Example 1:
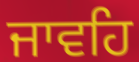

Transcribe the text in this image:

ਜਾਵਹਿ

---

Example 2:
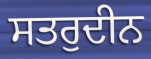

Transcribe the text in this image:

ਸਤਰੁਦੀਨ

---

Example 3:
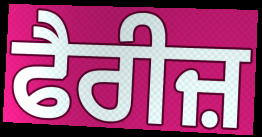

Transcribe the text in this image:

ਫੈਰੀਜ਼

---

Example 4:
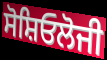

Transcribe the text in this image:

ਸੋਸ਼ਿਓਲੋਜੀ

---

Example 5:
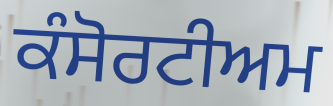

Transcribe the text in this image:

ਕੰਸੋਰਟੀਅਮ